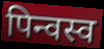
पिन्वस्व